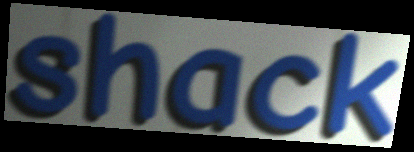
shack